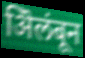
ऄिलंबून